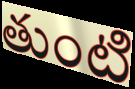
తుంటి